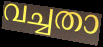
വച്ചതാ